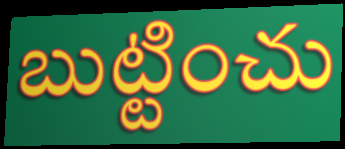
బుట్టించు